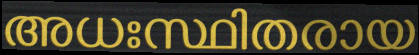
അധഃസ്ഥിതരായ